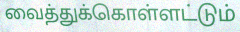
வைத்துக்கொள்ளட்டும்